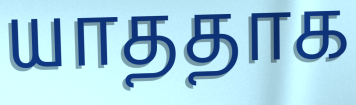
யாததாக